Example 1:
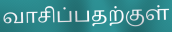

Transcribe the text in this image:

வாசிப்பதற்குள்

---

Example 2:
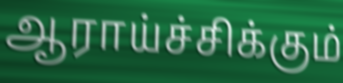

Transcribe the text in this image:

ஆராய்ச்சிக்கும்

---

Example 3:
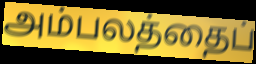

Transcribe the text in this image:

அம்பலத்தைப்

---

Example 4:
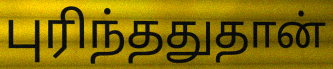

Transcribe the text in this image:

புரிந்ததுதான்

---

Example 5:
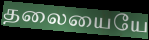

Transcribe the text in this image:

தலையையே